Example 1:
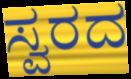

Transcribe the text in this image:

ಸ್ವರದ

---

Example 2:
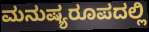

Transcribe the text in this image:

ಮನುಷ್ಯರೂಪದಲ್ಲಿ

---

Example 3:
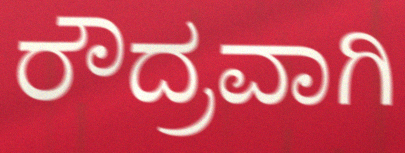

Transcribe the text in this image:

ರೌದ್ರವಾಗಿ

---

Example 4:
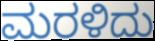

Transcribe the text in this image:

ಮರಳಿದು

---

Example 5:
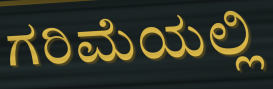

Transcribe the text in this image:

ಗರಿಮೆಯಲ್ಲಿ